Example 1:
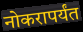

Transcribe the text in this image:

नोकरापर्यंत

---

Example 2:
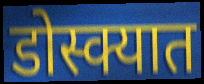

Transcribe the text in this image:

डोस्क्यात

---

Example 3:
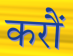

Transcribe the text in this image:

करौं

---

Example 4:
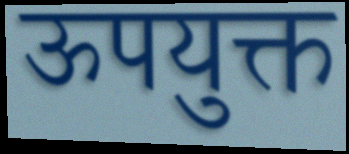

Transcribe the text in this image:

ऊपयुक्त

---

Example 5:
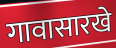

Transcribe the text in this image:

गावासारखे